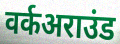
वर्कअराउंड